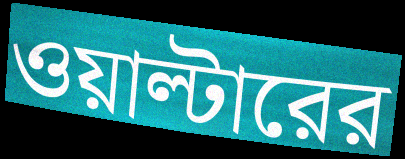
ওয়াল্টারের